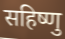
सहिष्णु